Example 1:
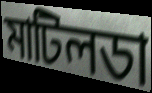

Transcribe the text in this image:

মাটিলডা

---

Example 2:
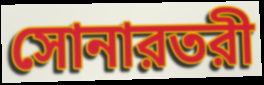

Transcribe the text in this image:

সোনারতরী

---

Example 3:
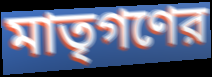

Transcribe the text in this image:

মাতৃগণের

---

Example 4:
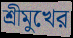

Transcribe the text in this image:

শ্রীমুখের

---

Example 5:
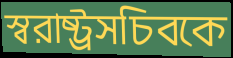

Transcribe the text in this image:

স্বরাষ্ট্রসচিবকে